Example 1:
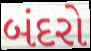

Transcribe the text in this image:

બંદરો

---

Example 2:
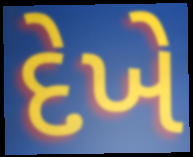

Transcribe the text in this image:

દેખે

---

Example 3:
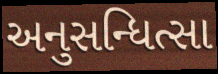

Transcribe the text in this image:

અનુસન્ધિત્સા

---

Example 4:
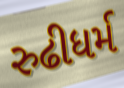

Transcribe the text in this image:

રુઢીધર્મ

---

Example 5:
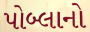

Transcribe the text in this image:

પોબ્લાનો